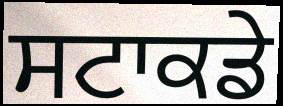
ਸਟਾਕਡੇ